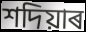
শদিয়াৰ